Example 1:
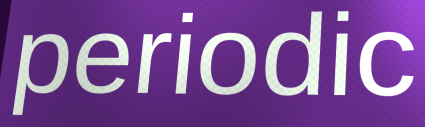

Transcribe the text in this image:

periodic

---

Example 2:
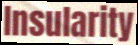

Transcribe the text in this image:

Insularity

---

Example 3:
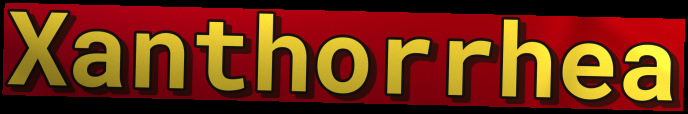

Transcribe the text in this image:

Xanthorrhea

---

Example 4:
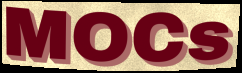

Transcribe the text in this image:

MOCs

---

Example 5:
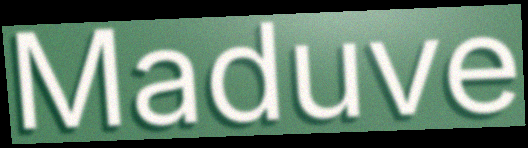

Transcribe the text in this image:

Maduve